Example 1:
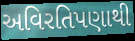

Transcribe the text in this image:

અવિરતિપણાથી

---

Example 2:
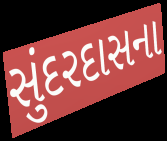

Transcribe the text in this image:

સુંદરદાસના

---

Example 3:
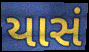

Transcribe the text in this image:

યાસં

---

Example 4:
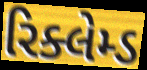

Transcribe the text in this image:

રિક્લેમ્ડ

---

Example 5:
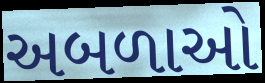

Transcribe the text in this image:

અબળાઓ